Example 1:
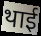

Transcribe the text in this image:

थाई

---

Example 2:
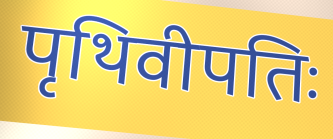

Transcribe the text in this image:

पृथिवीपतिः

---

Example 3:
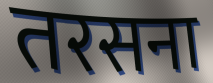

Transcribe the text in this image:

तरसना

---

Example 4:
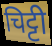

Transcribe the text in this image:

चिट्टी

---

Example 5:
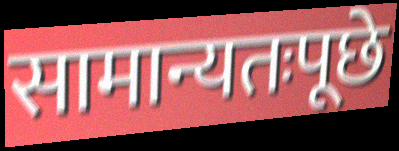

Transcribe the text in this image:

सामान्यतःपूछे